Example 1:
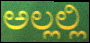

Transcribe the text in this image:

ಅಲ್ಲಲ್ಲಿ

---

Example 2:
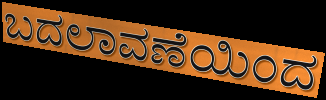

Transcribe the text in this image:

ಬದಲಾವಣೆಯಿಂದ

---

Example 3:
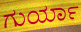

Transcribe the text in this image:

ಗುರ್ಯಾ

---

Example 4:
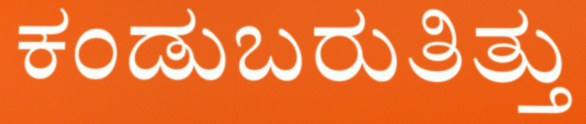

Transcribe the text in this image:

ಕಂಡುಬರುತಿತ್ತು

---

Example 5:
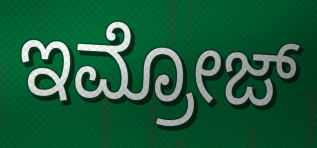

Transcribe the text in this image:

ಇಮ್ರೋಜ್